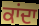
ਕਾਂਦਾ